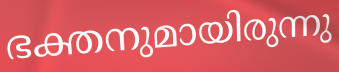
ഭക്തനുമായിരുന്നു